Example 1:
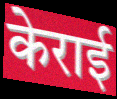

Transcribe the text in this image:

केराई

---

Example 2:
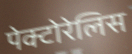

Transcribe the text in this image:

पेक्टोरेलिस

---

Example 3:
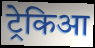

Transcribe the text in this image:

ट्रेकिआ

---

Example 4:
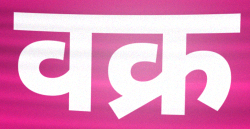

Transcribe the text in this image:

वक्र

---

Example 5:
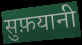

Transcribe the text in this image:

सुफ़यानी